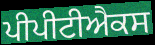
ਪੀਪੀਟੀਐਕਸ